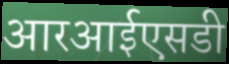
आरआईएसडी